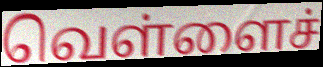
வெள்ளைச்